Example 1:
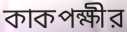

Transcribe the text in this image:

কাকপক্ষীর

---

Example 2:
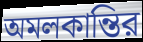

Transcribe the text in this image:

অমলকান্তির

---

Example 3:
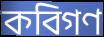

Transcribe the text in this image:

কবিগণ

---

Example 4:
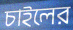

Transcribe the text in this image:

চাইলের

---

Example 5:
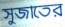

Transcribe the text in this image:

সুজাতের